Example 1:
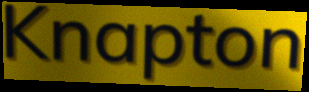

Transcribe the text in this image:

Knapton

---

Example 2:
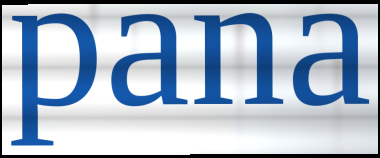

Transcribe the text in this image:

pana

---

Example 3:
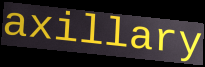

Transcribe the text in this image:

axillary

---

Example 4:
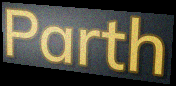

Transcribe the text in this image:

Parth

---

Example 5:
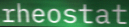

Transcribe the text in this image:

rheostat